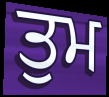
ਤੁਮ